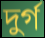
দুৰ্গ